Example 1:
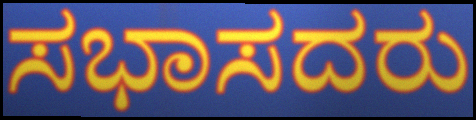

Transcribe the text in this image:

ಸಭಾಸದರು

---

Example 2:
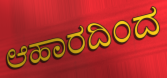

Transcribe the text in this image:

ಆಹಾರದಿಂದ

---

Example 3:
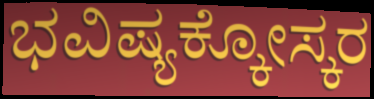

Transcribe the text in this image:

ಭವಿಷ್ಯಕ್ಕೋಸ್ಕರ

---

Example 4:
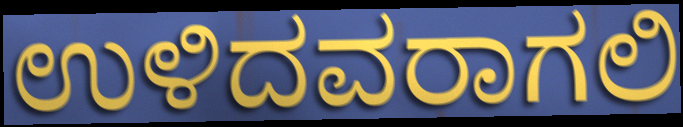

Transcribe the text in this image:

ಉಳಿದವರಾಗಲಿ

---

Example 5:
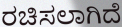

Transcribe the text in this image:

ರಚಿಸಲಾಗಿದೆ